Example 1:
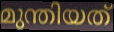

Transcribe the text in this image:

മുന്തിയത്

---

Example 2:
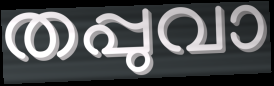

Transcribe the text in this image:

തപ്പുവാ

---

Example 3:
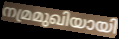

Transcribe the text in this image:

നമ്രമുഖിയായി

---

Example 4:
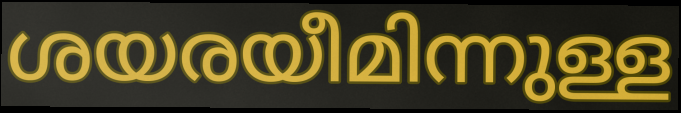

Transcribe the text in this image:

ശയരയീമിന്നുള്ള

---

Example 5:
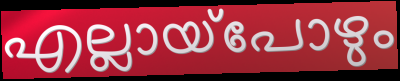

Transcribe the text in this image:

എല്ലായ്‌പോഴും